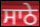
ਸਾਠੇ